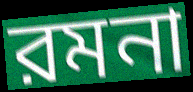
রমনা